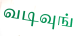
வடிவுங்